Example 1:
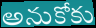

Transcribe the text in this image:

అనుకోకు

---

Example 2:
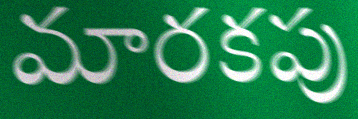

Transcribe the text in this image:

మారకపు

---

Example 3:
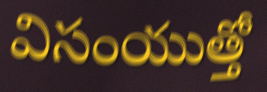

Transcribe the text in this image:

విసంయుత్తో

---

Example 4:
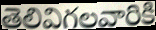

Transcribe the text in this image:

తెలివిగలవారికి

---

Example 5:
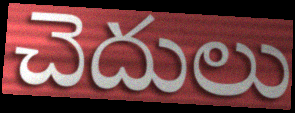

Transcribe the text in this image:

చెదులు